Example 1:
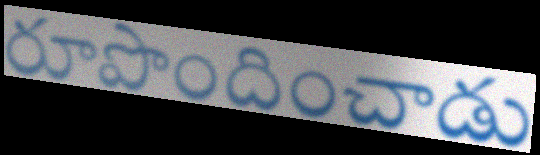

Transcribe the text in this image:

రూపొందించాడు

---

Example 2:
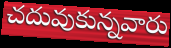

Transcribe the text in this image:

చదువుకున్నవారు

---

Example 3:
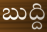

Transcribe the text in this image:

బుద్ది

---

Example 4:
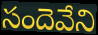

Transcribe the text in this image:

సందెవేని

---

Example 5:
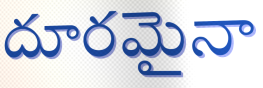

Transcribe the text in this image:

దూరమైనా